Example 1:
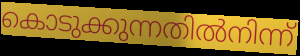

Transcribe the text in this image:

കൊടുക്കുന്നതിൽനിന്ന്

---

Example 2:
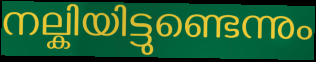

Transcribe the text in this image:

നല്കിയിട്ടുണ്ടെന്നും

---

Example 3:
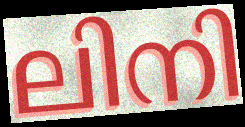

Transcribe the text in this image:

ലിനി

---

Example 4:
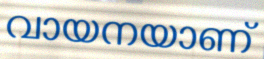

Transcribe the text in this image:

വായനയാണ്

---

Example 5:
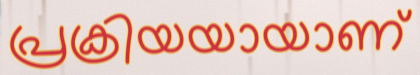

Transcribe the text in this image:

പ്രക്രിയയായാണ്